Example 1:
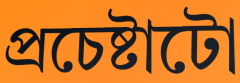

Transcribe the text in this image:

প্ৰচেষ্টাটো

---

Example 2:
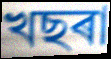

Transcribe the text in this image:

খছৰা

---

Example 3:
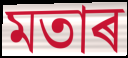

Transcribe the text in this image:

মতাৰ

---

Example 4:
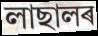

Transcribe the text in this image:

লাছালৰ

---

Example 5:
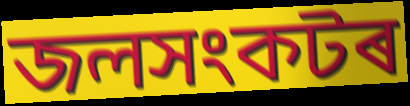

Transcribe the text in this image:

জলসংকটৰ